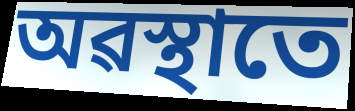
অৱস্থাতে